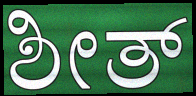
ಶೀತ್